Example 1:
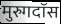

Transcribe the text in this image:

मुरुगदॉस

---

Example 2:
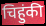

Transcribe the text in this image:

चिहुंकी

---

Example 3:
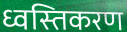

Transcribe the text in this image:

ध्वस्तिकरण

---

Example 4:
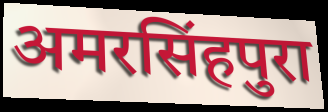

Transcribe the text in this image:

अमरसिंहपुरा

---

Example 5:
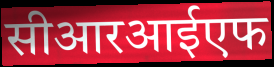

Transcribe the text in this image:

सीआरआईएफ